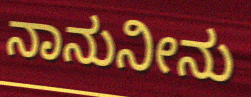
ನಾನುನೀನು